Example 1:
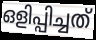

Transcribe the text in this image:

ഒളിപ്പിച്ചത്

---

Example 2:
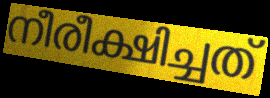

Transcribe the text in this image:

നീരീക്ഷിച്ചത്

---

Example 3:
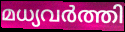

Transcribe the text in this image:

മധ്യവർത്തി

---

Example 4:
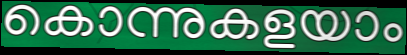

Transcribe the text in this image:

കൊന്നുകളയാം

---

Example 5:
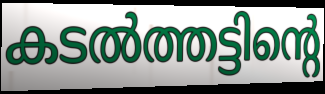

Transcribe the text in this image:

കടൽത്തട്ടിന്റെ